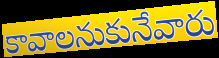
కావాలనుకునేవారు